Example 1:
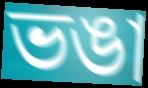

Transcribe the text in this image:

ভঙা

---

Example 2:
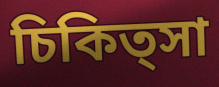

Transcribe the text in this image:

চিকিত্সা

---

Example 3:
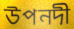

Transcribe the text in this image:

উপনদী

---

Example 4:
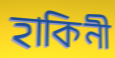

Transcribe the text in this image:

হাকিনী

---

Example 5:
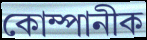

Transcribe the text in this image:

কোম্পানীক